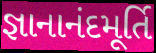
જ્ઞાનાનંદમૂર્તિ